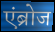
एंब्रोज